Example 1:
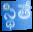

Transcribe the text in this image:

స్థితే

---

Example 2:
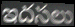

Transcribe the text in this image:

ఇదసలు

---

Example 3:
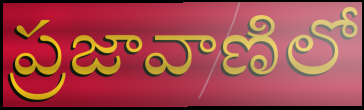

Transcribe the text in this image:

ప్రజావాణిలో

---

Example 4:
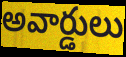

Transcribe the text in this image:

అవార్డులు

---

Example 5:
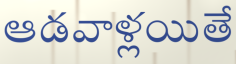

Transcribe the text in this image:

ఆడవాళ్లయితే